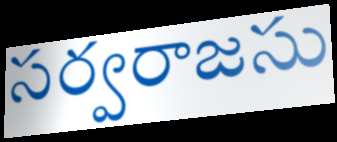
సర్వరాజసు